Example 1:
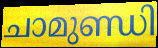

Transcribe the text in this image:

ചാമുണ്ഡി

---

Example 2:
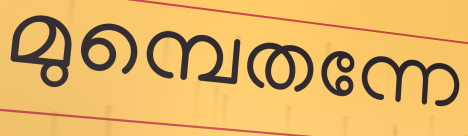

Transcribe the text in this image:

മുമ്പെതന്നേ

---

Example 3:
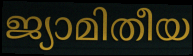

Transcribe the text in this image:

ജ്യാമിതീയ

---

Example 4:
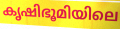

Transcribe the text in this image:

കൃഷിഭൂമിയിലെ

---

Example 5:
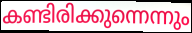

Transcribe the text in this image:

കണ്ടിരിക്കുന്നെന്നും